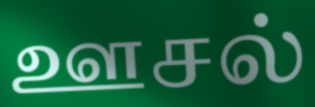
ஊசல்